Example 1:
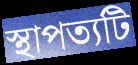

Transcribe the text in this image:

স্থাপত্যটি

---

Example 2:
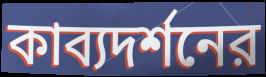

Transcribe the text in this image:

কাব্যদর্শনের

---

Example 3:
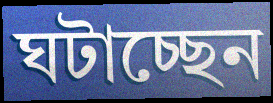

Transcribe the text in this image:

ঘটাচ্ছেন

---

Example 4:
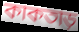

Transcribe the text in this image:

কাকতাড়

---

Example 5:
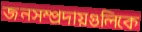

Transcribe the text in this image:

জনসম্প্রদায়গুলিকে